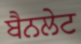
ਬੈਨਲੇਟ